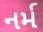
નર્મ